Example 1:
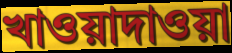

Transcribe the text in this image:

খাওয়াদাওয়া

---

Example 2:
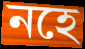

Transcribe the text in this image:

নহে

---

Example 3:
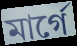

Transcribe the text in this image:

মার্গে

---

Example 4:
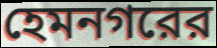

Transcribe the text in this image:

হেমনগরের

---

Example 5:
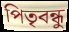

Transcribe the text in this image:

পিতৃবন্ধু